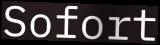
Sofort